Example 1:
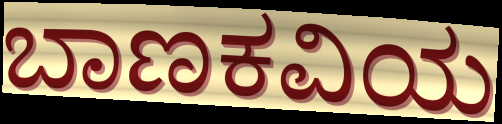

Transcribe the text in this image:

ಬಾಣಕವಿಯ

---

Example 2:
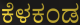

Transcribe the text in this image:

ಕೆಳಕಂಡ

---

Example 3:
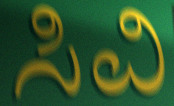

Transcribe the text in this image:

ಸಿವಿ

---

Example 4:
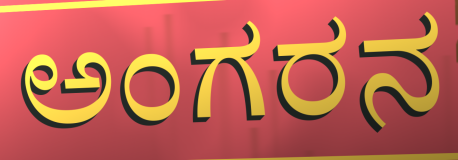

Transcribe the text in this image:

ಅಂಗರನ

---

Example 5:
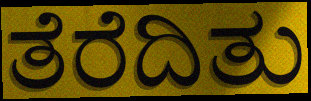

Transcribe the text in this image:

ತೆರೆದಿತು